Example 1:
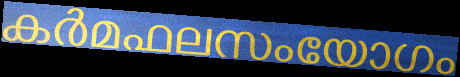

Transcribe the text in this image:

കർമഫലസംയോഗം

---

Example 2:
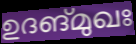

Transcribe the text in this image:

ഉദങ്മുഖഃ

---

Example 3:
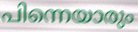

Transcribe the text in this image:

പിന്നെയാരും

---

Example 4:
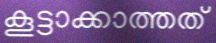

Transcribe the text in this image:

കൂട്ടാക്കാത്തത്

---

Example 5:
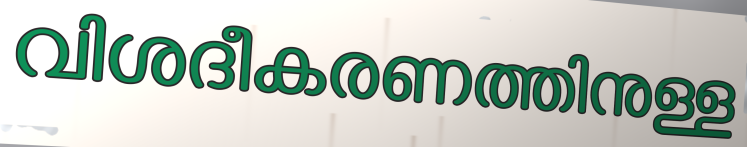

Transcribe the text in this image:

വിശദീകരണത്തിനുള്ള